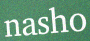
nasho